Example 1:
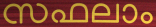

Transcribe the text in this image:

സഫലാം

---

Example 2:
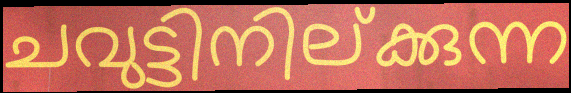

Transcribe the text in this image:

ചവുട്ടിനില്ക്കുന്ന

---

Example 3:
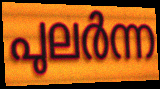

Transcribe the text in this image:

പുലർന്ന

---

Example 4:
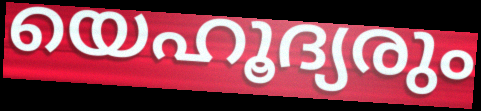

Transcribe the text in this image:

യെഹൂദ്യരും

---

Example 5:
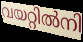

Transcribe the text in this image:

വയറ്റിൽനി